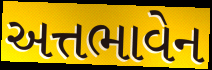
અત્તભાવેન